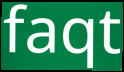
faqt